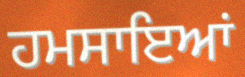
ਹਮਸਾਇਆਂ